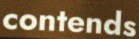
contends